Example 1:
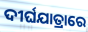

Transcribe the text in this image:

ଦୀର୍ଘଯାତ୍ରାରେ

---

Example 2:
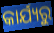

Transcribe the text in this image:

କାର୍ଯ୍ୟରୁ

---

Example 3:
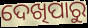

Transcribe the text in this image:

ଦେଖିପାରୁ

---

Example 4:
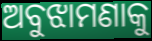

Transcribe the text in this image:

ଅବୁଝାମଣାକୁ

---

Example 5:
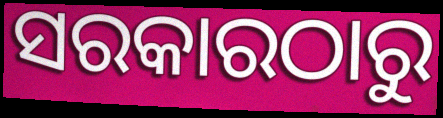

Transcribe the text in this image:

ସରକାରଠାରୁ